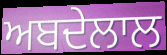
ਅਬਦੇਲਾਲ